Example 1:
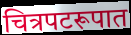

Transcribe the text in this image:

चित्रपटरूपात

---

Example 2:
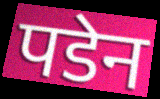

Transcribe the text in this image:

पडेन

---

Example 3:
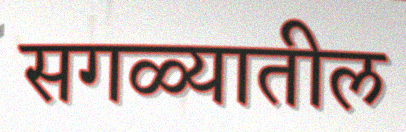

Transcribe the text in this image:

सगळ्यातील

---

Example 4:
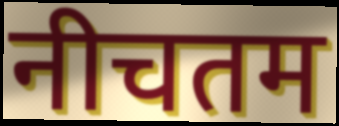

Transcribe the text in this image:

नीचतम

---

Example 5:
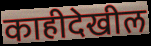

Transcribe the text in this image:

काहीदेखील